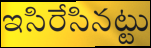
ఇసిరేసినట్టు